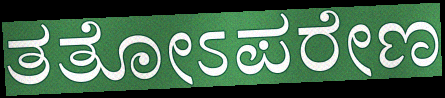
ತತೋಽಪರೇಣ